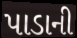
પાડાની